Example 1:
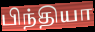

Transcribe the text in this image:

பிந்தியா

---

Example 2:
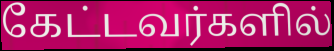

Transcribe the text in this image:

கேட்டவர்களில்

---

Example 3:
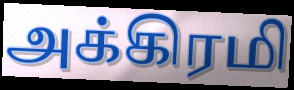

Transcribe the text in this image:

அக்கிரமி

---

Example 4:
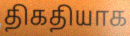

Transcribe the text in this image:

திகதியாக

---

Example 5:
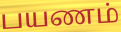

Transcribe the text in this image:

பயணம்